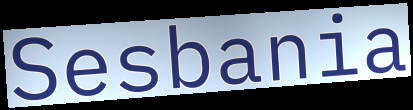
Sesbania